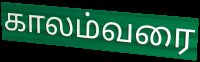
காலம்வரை